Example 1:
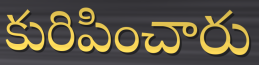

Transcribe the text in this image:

కురిపించారు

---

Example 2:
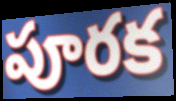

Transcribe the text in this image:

పూరక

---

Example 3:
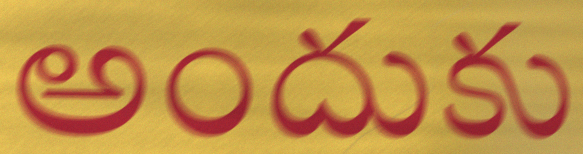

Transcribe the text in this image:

అందుకు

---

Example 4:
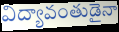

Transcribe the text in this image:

విద్యావంతుడైనా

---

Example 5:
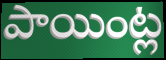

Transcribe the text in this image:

పాయింట్ల